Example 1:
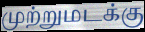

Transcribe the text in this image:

முற்றுமடக்கு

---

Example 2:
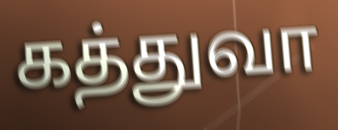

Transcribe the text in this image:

கத்துவா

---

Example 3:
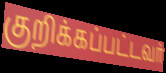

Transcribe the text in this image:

குறிக்கப்பட்டவர்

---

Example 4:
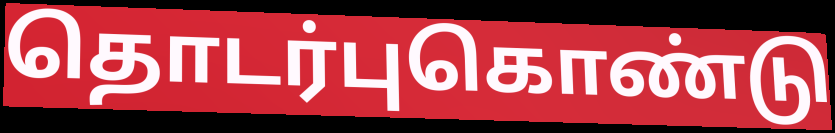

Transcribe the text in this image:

தொடர்புகொண்டு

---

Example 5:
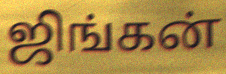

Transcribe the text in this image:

ஜிங்கன்